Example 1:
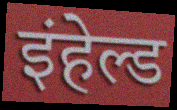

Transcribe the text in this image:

इंहेल्ड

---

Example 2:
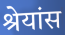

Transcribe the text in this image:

श्रेयांस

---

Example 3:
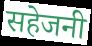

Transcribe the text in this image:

सहेजनी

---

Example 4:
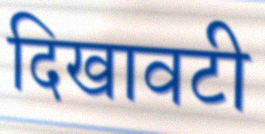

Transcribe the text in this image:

दिखावटी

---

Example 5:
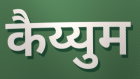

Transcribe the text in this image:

कैय्युम